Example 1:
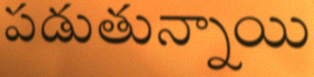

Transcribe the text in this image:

పడుతున్నాయి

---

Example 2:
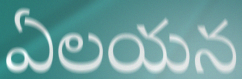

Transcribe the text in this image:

ఏలయన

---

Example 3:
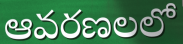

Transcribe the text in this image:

ఆవరణలలో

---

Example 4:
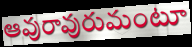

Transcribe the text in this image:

ఆవురావురుమంటూ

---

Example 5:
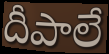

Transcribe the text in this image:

దీపాలే